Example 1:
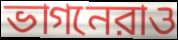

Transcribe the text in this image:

ভাগনেরাও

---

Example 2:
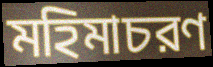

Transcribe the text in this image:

মহিমাচরণ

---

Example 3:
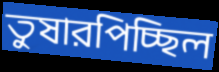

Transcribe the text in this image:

তুষারপিচ্ছিল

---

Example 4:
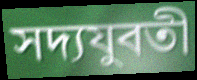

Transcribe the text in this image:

সদ্যযুবতী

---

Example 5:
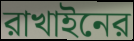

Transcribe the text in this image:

রাখাইনের